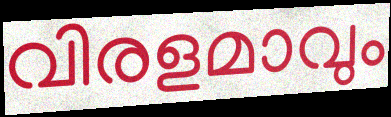
വിരളമാവും